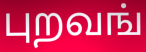
புறவங்